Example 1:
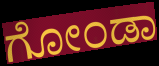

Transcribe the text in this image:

ಗೋಂಡಾ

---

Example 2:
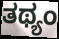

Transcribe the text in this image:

ತಥ್ಯಂ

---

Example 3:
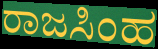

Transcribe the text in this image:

ರಾಜಸಿಂಹ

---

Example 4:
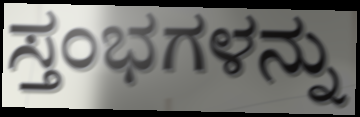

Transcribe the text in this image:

ಸ್ತಂಭಗಳನ್ನು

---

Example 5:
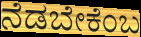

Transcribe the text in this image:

ನೆಡಬೇಕೆಂಬ